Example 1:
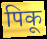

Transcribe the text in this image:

पिकू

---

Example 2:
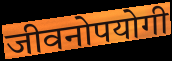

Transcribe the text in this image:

जीवनोपयोगी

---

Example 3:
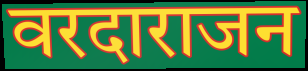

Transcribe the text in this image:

वरदाराजन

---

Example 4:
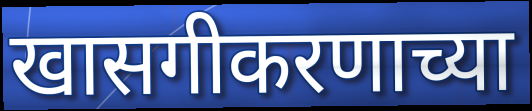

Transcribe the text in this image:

खासगीकरणाच्या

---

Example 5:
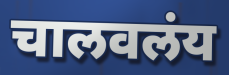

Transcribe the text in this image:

चालवलंय